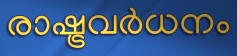
രാഷ്ട്രവർധനം